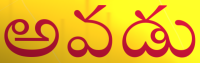
అవడు